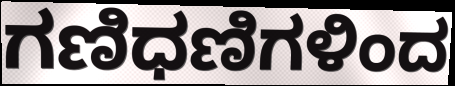
ಗಣಿಧಣಿಗಳಿಂದ